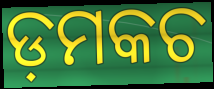
ଡ଼ମକଚ